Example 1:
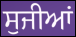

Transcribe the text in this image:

ਸੁਜੀਆਂ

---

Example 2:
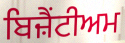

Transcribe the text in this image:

ਬਿਜ਼ੈਂਟੀਅਮ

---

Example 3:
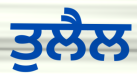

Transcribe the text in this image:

ਤੁਲੈਲ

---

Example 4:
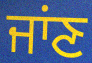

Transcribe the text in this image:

ਜਾਂਣ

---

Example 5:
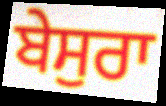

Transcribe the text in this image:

ਬੇਸੁਰਾ